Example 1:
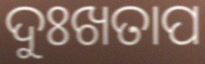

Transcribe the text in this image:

ଦୁଃଖତାପ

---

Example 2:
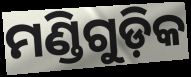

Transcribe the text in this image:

ମଣ୍ଡିଗୁଡ଼ିକ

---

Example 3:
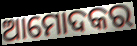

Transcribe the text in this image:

ଆମୋଦକର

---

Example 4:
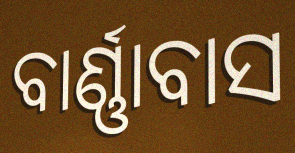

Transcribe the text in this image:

ବାର୍ଣ୍ଣାବାସ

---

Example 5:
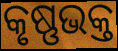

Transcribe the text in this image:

କୃଷ୍ଣଭକ୍ତ